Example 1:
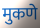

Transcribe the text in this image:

मुकणे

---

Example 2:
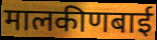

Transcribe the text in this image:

मालकीणबाई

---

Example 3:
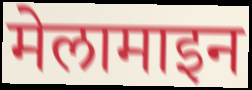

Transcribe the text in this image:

मेलामाइन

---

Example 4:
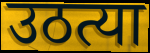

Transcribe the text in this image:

उठत्या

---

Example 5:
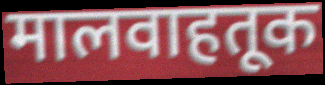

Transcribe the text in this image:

मालवाहतूक